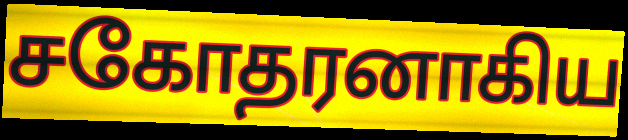
சகோதரனாகிய